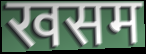
खसम